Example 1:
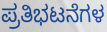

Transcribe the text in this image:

ಪ್ರತಿಭಟನೆಗಳ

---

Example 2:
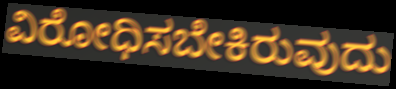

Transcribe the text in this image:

ವಿರೋಧಿಸಬೇಕಿರುವುದು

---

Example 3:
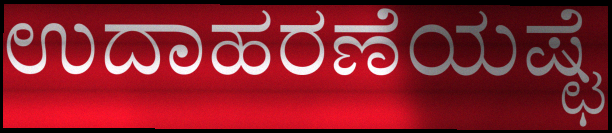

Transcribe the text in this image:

ಉದಾಹರಣೆಯಷ್ಟೆ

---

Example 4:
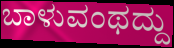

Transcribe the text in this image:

ಬಾಳುವಂಥದ್ದು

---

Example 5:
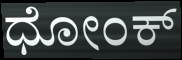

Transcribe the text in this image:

ಧೋಂಕ್